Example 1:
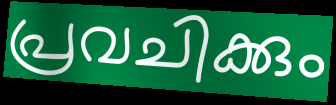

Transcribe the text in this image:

പ്രവചിക്കും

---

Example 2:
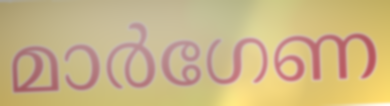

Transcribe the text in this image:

മാർഗേണ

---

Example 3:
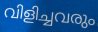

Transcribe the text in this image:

വിളിച്ചവരും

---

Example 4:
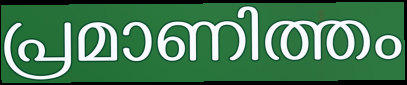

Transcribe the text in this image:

പ്രമാണിത്തം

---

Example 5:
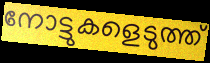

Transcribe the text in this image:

നോട്ടുകളെടുത്ത്